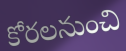
కోరలనుంచి